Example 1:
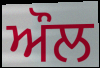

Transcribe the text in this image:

ਔਲ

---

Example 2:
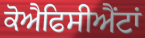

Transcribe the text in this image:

ਕੋਐਫਿਸੀਐਂਟਾਂ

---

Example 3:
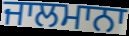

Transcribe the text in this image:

ਜਾਲਮਾਨਾ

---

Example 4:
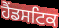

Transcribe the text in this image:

ਹੈਂਡਸਟਿਕ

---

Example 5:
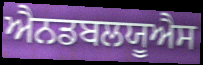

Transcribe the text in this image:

ਐਨਡਬਲਯੂਐਸ